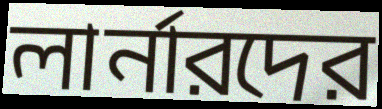
লার্নারদের